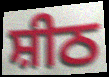
ਸ਼ੀਠ